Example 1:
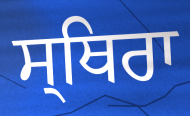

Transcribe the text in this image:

ਸ੍ਥਿਰਾ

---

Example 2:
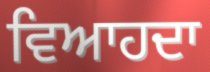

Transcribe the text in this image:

ਵਿਆਹਦਾ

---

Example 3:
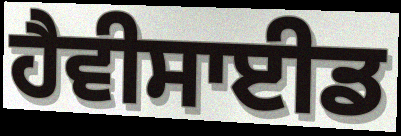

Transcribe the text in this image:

ਹੈਵੀਸਾਈਡ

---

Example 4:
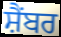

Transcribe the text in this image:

ਸ਼ੈਂਬਰ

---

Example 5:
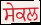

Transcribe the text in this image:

ਸੇਕਲ